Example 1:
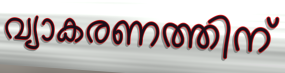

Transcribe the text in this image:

വ്യാകരണത്തിന്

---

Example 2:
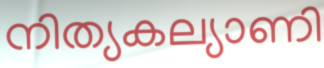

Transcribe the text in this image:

നിത്യകല്യാണി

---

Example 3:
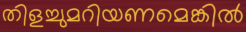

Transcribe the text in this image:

തിളച്ചുമറിയണമെങ്കിൽ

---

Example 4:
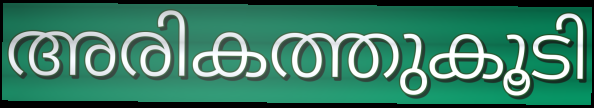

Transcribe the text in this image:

അരികത്തുകൂടി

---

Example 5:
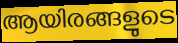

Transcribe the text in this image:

ആയിരങ്ങളുടെ